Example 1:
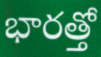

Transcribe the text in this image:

భారత్తో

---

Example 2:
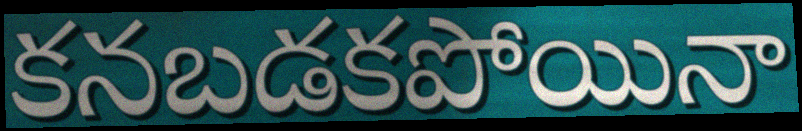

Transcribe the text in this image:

కనబడకపోయినా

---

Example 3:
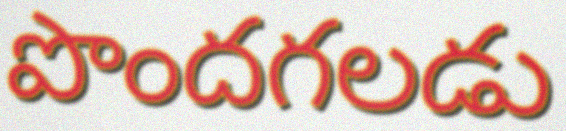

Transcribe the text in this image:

పొందగలడు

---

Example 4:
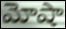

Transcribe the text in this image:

మోషా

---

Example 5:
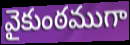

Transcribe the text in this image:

వైకుంఠముగా